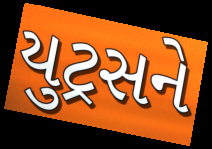
યુટ્રસને